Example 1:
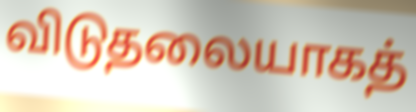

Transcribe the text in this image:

விடுதலையாகத்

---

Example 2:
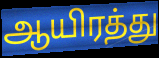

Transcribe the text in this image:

ஆயிரத்து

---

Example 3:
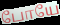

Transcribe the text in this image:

போயே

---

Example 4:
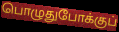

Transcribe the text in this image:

பொழுதுபோக்குப்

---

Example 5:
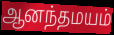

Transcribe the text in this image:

ஆனந்தமயம்